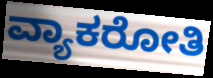
ವ್ಯಾಕರೋತಿ